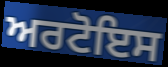
ਅਰਟੋਇਸ